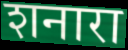
शनारा